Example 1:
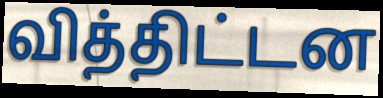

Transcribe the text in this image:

வித்திட்டன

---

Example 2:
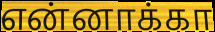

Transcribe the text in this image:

என்னாக்கா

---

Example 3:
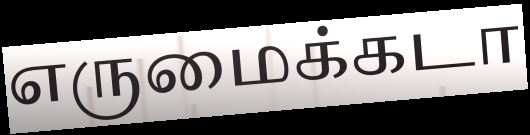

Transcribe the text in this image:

எருமைக்கடா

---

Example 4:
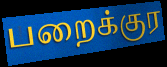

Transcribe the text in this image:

பறைக்குர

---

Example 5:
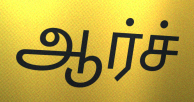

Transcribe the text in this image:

ஆர்ச்